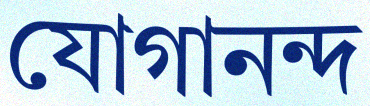
যোগানন্দ